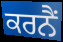
ਕਰਨੈਂ